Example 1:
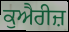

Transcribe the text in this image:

ਕੁਐਰੀਜ਼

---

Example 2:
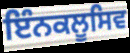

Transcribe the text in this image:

ਇੰਨਕਲੂਸਿਵ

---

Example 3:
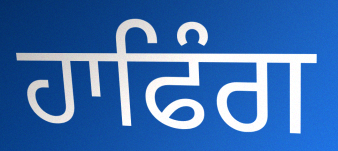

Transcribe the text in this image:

ਹਾਫਿੰਗ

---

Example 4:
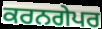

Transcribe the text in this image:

ਕਰਨਗੇਪਰ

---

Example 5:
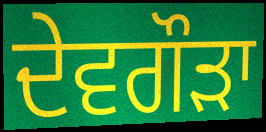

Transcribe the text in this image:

ਦੇਵਗੌੜਾ